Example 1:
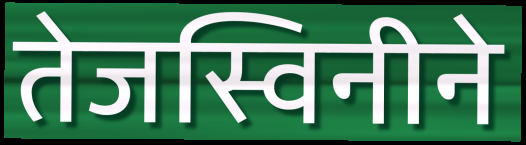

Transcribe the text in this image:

तेजस्विनीने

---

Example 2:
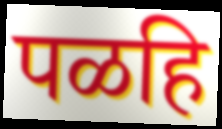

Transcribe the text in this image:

पळहि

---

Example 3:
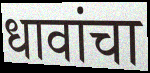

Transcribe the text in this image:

धावांचा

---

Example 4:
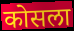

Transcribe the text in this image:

कोसला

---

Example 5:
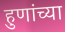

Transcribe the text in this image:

हुणांच्या